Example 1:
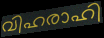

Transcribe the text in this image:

വിഹരാഹി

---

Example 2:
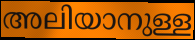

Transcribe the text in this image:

അലിയാനുള്ള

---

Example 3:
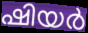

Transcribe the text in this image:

ഷിയർ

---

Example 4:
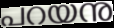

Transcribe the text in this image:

പറയനു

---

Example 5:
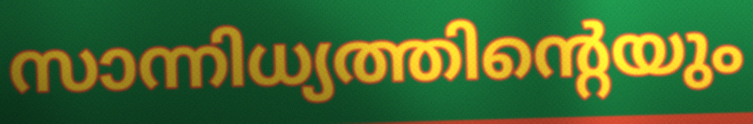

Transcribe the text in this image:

സാന്നിധ്യത്തിന്റെയും